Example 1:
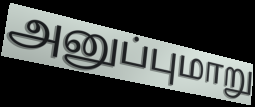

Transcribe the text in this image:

அனுப்புமாறு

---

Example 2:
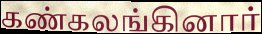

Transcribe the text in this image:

கண்கலங்கினார்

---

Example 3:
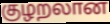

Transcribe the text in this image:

குழறலான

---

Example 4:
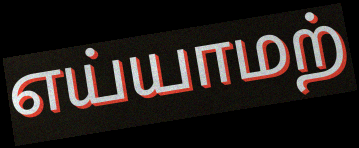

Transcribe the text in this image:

எய்யாமற்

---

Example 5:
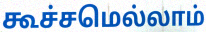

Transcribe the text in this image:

கூச்சமெல்லாம்